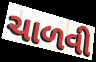
ચાળવી